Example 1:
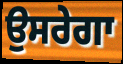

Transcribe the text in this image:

ਉਸਰੇਗਾ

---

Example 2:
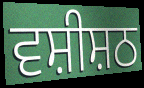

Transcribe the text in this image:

ਵਸ਼ੀਸ਼ਠ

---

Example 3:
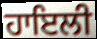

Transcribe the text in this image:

ਹਾਇਲੀ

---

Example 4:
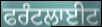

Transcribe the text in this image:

ਫਰੰਟਲਾਈਟ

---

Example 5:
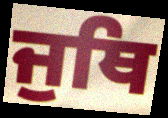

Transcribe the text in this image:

ਜੁਥਿ